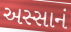
અસ્સાનં